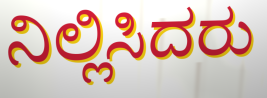
ನಿಲ್ಲಿಸಿದರು